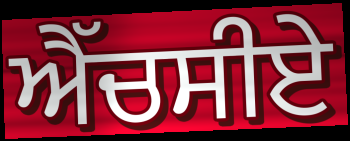
ਐੱਚਸੀਏ